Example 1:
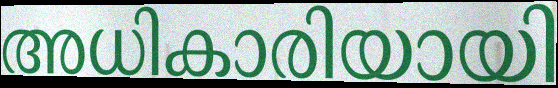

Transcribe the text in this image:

അധികാരിയായി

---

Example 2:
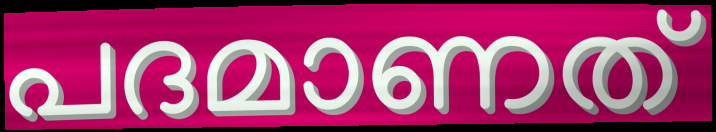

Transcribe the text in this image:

പദമാണത്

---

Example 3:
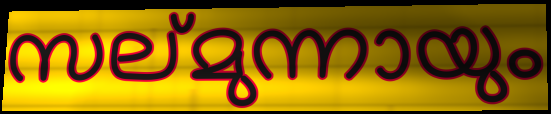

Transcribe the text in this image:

സല്മുന്നായും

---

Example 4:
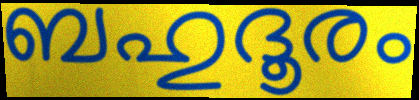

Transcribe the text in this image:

ബഹുദൂരം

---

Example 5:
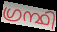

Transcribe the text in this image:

ഗ്രന്ഥി